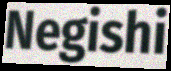
Negishi